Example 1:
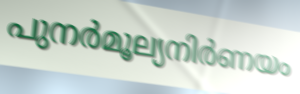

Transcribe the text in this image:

പുനർമൂല്യനിർണയം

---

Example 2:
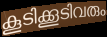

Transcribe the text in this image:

കൂടിക്കൂടിവരും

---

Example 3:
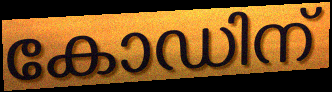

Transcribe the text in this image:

കോഡിന്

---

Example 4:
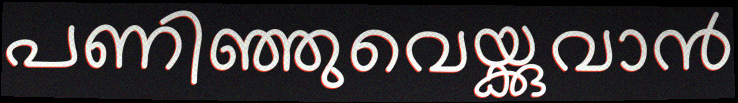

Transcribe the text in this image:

പണിഞ്ഞുവെയ്ക്കുവാൻ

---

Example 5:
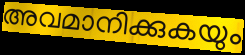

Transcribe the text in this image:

അവമാനിക്കുകയും